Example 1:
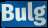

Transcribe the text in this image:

Bulg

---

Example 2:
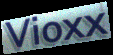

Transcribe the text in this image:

Vioxx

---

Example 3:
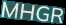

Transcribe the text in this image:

MHGR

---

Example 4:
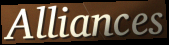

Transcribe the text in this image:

Alliances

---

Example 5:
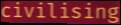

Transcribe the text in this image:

civilising